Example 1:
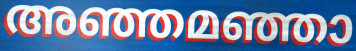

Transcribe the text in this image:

അഞ്ഞമഞ്ഞാ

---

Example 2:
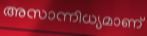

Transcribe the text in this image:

അസാന്നിധ്യമാണ്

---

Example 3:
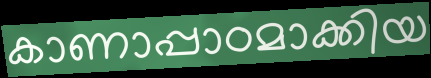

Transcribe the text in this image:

കാണാപ്പാഠമാക്കിയ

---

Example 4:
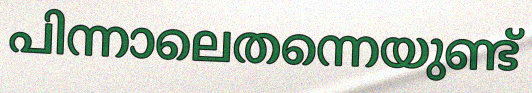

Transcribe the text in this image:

പിന്നാലെതന്നെയുണ്ട്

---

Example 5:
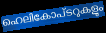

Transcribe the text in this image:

ഹെലികോപ്ടറുകളും